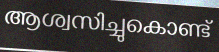
ആശ്വസിച്ചുകൊണ്ട്